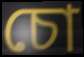
চো